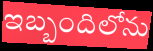
ఇబ్బందిలోను